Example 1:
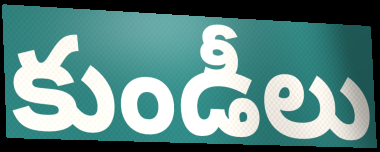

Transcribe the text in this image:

కుండీలు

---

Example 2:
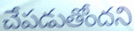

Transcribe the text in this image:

చేపడుతోందని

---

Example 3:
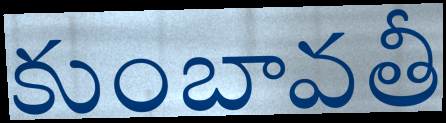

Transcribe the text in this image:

కుంబావతీ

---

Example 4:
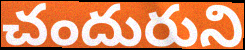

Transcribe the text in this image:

చందురుని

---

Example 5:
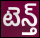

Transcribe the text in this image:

టెన్త్